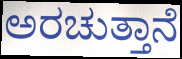
ಅರಚುತ್ತಾನೆ